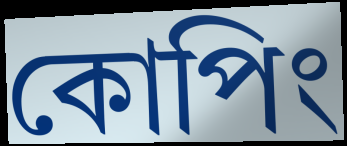
কোপিং